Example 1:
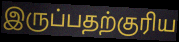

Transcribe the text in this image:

இருப்பதற்குரிய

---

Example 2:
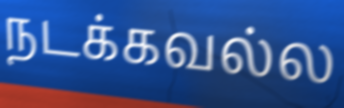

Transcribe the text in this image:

நடக்கவல்ல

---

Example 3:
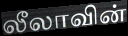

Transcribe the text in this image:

லீலாவின்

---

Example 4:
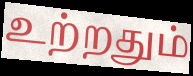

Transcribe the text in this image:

உற்றதும்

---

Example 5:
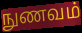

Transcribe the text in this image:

நுணவம்